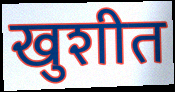
खुशीत